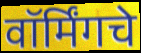
वॉर्मिंगचे